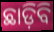
ଛାଡ଼ିବି